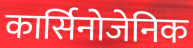
कार्सिनोजेनिक